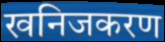
खनिजकरण